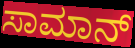
ಸಾಮಾನ್